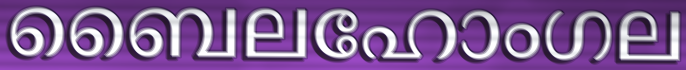
ബൈലഹോംഗല